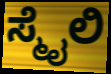
ಸ್ಮೈಲಿ